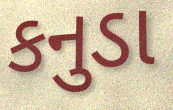
કનુડા